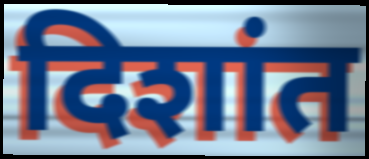
दिशांत